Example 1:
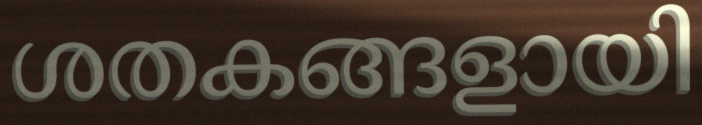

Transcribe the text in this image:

ശതകങ്ങളായി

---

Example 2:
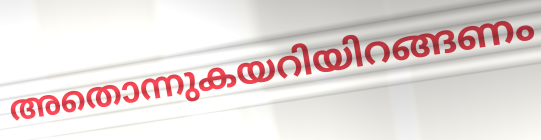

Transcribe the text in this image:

അതൊന്നുകയറിയിറങ്ങണം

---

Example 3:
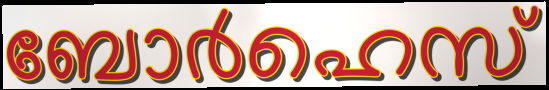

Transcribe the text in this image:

ബോർഹെസ്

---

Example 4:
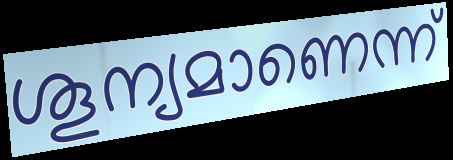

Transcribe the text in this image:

ശൂന്യമാണെന്ന്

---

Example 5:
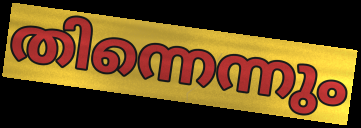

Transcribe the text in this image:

തിന്നെന്നും